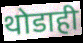
थोडाही